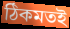
ঠিকমতই